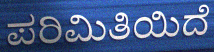
ಪರಿಮಿತಿಯಿದೆ